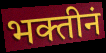
भक्तीनं